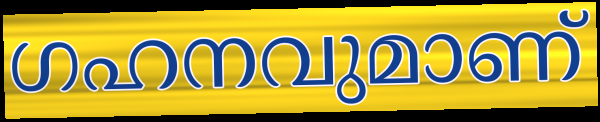
ഗഹനവുമാണ്